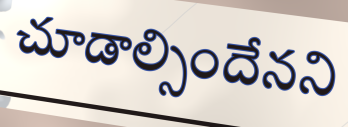
చూడాల్సిందేనని